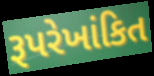
રૂપરેખાંકિત